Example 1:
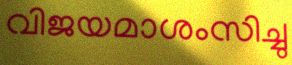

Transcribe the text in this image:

വിജയമാശംസിച്ചു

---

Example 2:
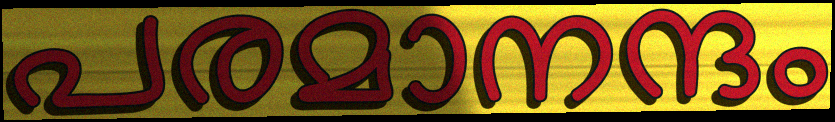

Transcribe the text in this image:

പരമാനന്ദം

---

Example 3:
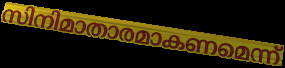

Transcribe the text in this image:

സിനിമാതാരമാകണമെന്ന്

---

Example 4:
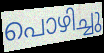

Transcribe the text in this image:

പൊഴിച്ചു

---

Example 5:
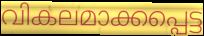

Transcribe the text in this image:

വികലമാക്കപ്പെട്ട